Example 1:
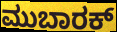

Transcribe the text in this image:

ಮುಬಾರಕ್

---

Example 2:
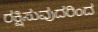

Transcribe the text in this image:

ರಕ್ಷಿಸುವುದರಿಂದ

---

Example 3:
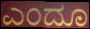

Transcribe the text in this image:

ಎಂದೂ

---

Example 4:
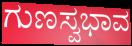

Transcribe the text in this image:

ಗುಣಸ್ವಭಾವ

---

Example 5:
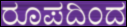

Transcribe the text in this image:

ರೂಪದಿಂದ